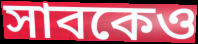
সাবকেও